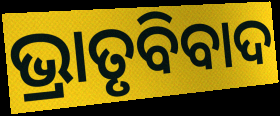
ଭ୍ରାତୃବିବାଦ